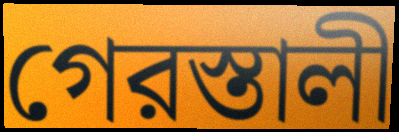
গেরস্তালী